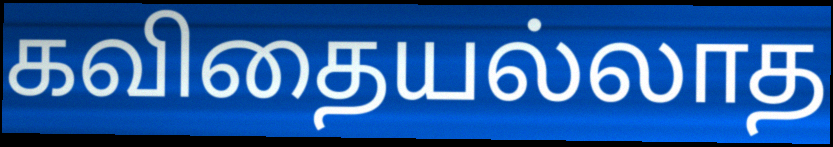
கவிதையல்லாத